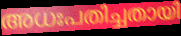
അധഃപതിച്ചതായി